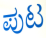
ಪುಟ